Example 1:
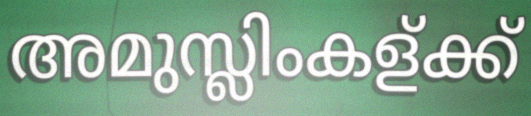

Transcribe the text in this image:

അമുസ്ലിംകള്ക്ക്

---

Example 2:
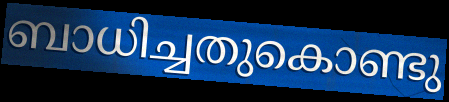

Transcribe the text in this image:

ബാധിച്ചതുകൊണ്ടു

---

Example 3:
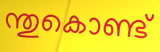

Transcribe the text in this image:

ന്തുകൊണ്ട്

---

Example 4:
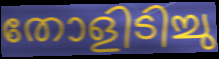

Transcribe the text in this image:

തോളിടിച്ചു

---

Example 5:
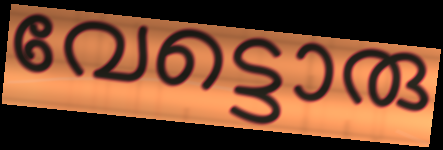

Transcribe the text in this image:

വേട്ടൊരു